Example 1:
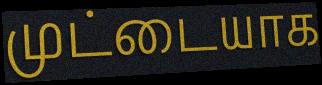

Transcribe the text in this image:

முட்டையாக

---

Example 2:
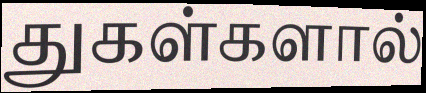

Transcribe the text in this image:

துகள்களால்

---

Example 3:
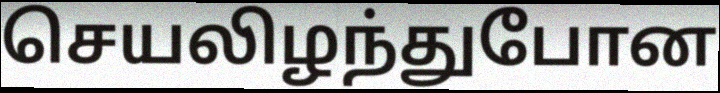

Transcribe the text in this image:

செயலிழந்துபோன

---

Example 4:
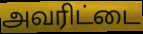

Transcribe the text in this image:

அவரிட்டை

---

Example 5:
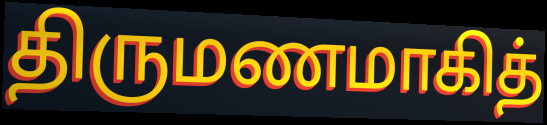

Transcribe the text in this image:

திருமணமாகித்